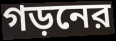
গড়নের